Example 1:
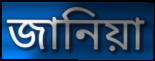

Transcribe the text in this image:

জানিয়া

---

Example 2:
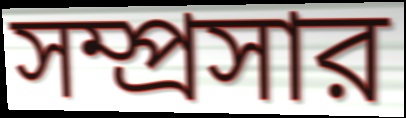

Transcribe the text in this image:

সম্প্রসার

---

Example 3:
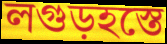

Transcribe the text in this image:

লগুড়হস্তে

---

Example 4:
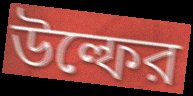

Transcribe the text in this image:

উল্ফের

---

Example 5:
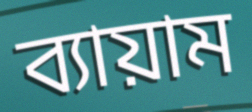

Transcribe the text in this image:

ব্যায়াম